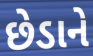
છેડાને